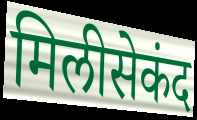
मिलीसेकंद